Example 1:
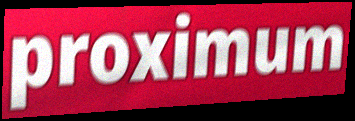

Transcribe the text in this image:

proximum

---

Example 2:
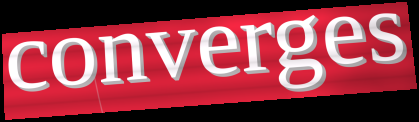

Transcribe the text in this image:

converges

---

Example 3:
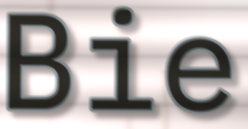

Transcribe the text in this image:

Bie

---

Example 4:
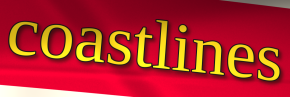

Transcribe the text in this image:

coastlines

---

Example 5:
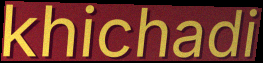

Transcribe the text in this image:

khichadi